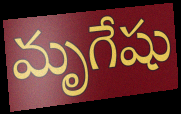
మృగేషు